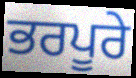
ਭਰਪੂਰੇ